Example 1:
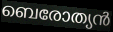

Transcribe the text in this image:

ബെരോത്യൻ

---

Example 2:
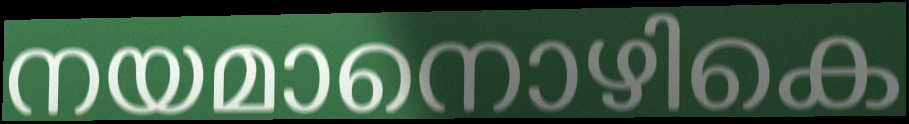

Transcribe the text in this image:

നയമാനൊഴികെ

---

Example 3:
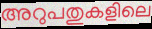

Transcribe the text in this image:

അറുപതുകളിലെ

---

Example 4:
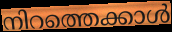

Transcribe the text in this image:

നിറത്തെക്കാൾ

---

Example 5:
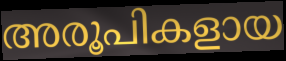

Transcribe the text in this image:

അരൂപികളായ